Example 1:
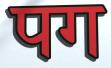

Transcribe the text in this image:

पग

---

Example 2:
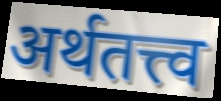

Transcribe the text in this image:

अर्थतत्त्व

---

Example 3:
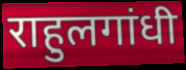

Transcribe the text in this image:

राहुलगांधी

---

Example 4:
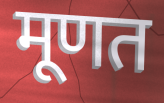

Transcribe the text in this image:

मूणत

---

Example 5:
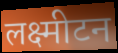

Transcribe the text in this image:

लक्ष्मीटन